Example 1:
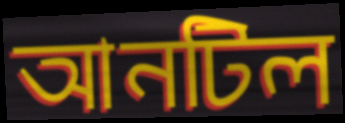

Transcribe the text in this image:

আনটিল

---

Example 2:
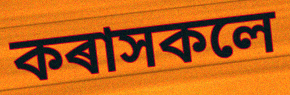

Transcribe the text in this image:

কৰাসকলে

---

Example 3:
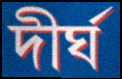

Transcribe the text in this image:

দীৰ্ঘ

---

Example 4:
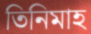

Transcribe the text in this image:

তিনিমাহ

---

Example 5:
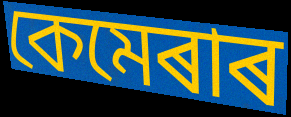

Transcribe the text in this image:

কেমেৰাৰ